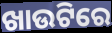
ଖାଉଟିରେ